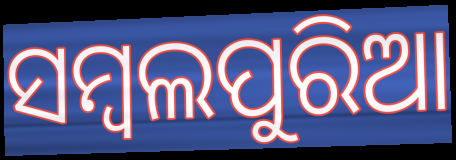
ସମ୍ବଲପୁରିଆ